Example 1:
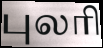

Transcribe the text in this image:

புலரி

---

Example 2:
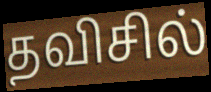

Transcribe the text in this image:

தவிசில்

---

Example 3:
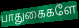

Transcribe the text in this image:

பாதுகைகளே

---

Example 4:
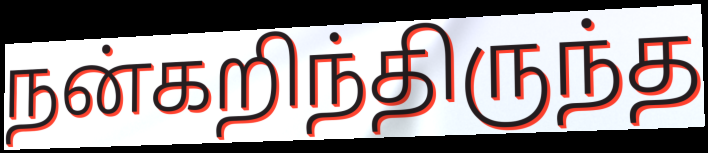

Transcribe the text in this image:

நன்கறிந்திருந்த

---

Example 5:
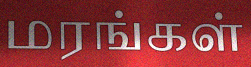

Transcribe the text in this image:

மரங்கள்